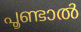
പൂണ്ടാൽ